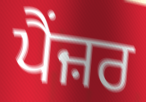
ਪੈਂਜ਼ਰ